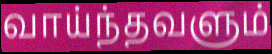
வாய்ந்தவளும்